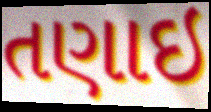
તણાઇ